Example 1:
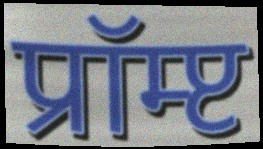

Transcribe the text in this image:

प्रॉम्प्ट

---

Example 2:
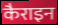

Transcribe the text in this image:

कैराइन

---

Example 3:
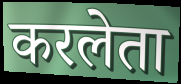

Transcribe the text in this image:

करलेता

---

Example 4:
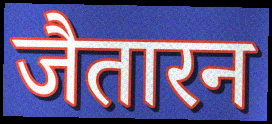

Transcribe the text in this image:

जैतारन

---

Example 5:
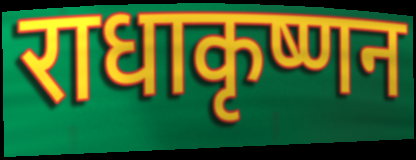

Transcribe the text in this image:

राधाकृष्णन